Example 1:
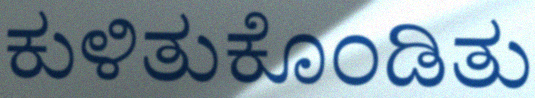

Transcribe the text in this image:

ಕುಳಿತುಕೊಂಡಿತು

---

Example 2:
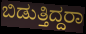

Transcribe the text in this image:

ಬಿಡುತ್ತಿದ್ದರಾ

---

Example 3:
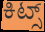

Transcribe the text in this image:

ಕಿಟ್ಸ್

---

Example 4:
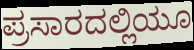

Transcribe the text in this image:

ಪ್ರಸಾರದಲ್ಲಿಯೂ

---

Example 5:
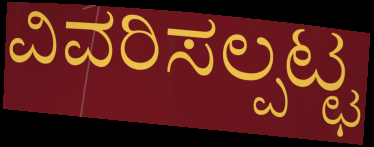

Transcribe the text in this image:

ವಿವರಿಸಲ್ಪಟ್ಟ